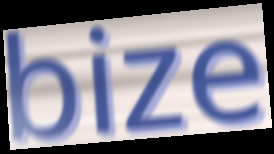
bize